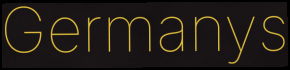
Germanys